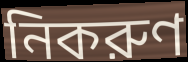
নিকৰুণ